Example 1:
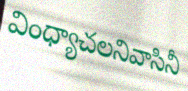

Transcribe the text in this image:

వింధ్యాచలనివాసినీ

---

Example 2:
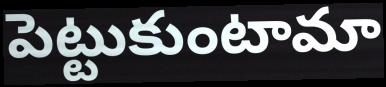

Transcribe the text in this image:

పెట్టుకుంటామా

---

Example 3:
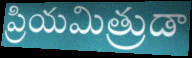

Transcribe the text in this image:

ప్రియమిత్రుడా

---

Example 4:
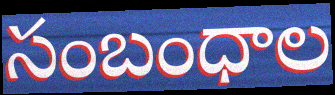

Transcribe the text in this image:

సంబంధాల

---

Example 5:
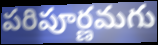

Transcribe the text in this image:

పరిపూర్ణమగు